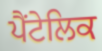
ਪੈਂਟੇਲਿਕ